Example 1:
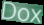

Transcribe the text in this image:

Dox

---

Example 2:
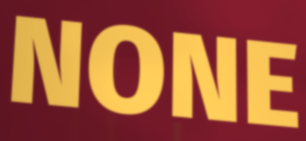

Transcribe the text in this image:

NONE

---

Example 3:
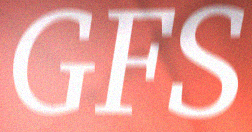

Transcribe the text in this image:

GFS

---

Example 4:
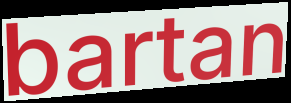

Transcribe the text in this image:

bartan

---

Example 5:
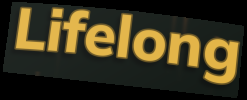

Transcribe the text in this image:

Lifelong